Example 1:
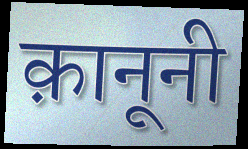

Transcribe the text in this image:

क़ानूनी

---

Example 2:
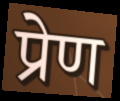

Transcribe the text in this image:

प्रेण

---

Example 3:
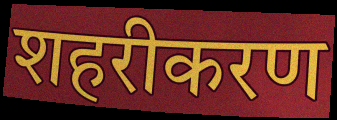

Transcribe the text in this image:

शहरीकरण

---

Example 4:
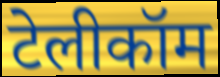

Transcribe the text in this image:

टेलीकॉम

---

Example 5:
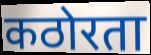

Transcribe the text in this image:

कठोरता